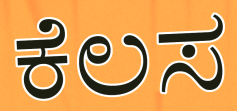
ಕೆಲಸ